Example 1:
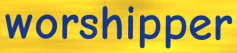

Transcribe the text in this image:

worshipper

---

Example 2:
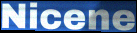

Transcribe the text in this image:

Nicene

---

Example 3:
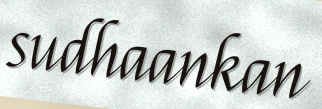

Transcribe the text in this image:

sudhaankan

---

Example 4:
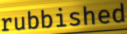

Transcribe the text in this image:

rubbished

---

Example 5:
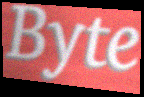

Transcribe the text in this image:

Byte